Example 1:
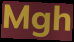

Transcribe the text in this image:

Mgh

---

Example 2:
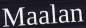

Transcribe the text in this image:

Maalan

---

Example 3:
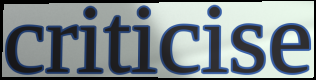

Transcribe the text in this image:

criticise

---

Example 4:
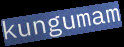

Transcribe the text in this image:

kungumam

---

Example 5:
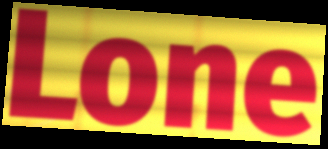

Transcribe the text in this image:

Lone